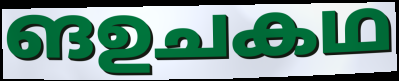
ങഉചകഥ